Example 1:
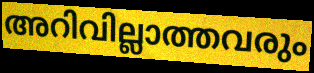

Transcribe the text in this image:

അറിവില്ലാത്തവരും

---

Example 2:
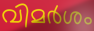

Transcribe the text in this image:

വിമർശം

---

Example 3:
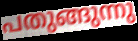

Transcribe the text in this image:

പതുങ്ങുന്നു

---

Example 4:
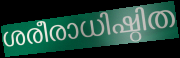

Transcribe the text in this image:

ശരീരാധിഷ്ഠിത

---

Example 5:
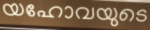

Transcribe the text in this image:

യഹോവയുടെ